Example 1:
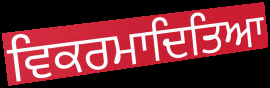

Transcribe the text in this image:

ਵਿਕਰਮਾਦਿਤਿਆ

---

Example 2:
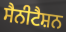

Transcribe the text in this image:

ਸੈਨੀਟੈਸ਼ਨ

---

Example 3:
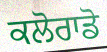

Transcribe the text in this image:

ਕਲੋਰਾਡੋ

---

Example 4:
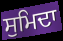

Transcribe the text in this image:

ਸੁਮਿਦਾ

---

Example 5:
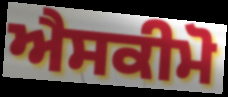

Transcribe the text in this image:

ਐਸਕੀਮੋ